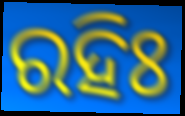
ରହିଃ